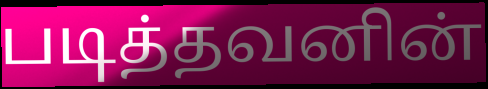
படித்தவனின்